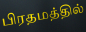
பிரதமத்தில்